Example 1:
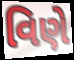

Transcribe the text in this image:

વિણે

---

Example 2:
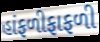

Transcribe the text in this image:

હાંફળીફાફળી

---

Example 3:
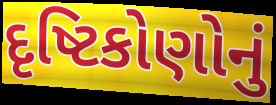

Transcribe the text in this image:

દૃષ્ટિકોણોનું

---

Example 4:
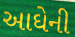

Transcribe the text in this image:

આઘેની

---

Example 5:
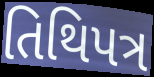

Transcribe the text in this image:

તિથિપત્ર